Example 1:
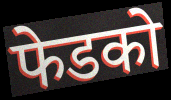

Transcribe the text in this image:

फेडको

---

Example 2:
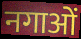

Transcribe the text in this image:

नगाओं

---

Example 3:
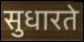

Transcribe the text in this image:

सुधारते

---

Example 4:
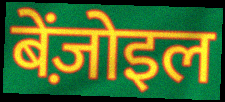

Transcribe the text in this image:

बेंज़ोइल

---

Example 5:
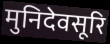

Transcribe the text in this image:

मुनिदेवसूरि